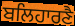
ਬਲਿਹਾਰਣੈ